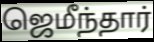
ஜெமீந்தார்